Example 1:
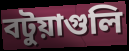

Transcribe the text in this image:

বটুয়াগুলি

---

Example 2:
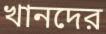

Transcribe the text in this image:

খানদের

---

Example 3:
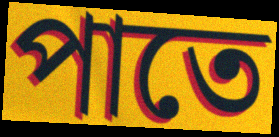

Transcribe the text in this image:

পাতে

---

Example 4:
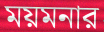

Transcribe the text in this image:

ময়মনার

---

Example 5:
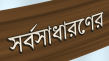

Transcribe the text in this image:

সর্বসাধারণের